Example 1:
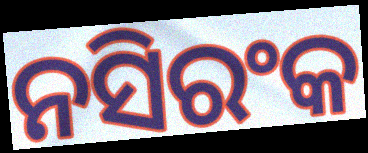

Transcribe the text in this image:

ନସିରଂକ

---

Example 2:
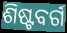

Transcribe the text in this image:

ଶିଷ୍ଟବର୍ଗ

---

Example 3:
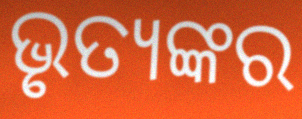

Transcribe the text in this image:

ଭୃତ୍ୟଙ୍କର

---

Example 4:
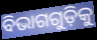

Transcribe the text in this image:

ବିଭାଗଗୁଡ଼ିକୁ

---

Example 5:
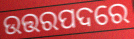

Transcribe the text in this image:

ଉତ୍ତରପଦରେ